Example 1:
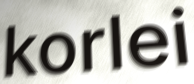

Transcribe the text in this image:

korlei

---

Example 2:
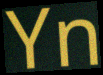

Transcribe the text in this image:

Yn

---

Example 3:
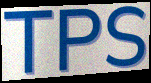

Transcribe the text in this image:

TPS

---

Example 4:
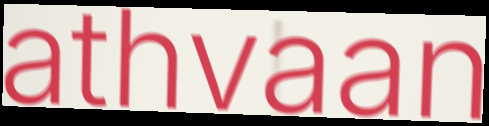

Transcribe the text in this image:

athvaan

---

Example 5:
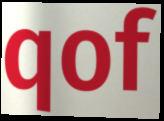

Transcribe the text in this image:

qof